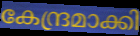
കേന്ദ്രമാക്കി